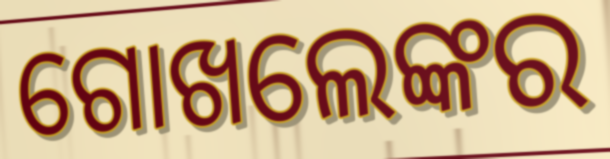
ଗୋଖଲେଙ୍କର